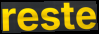
reste